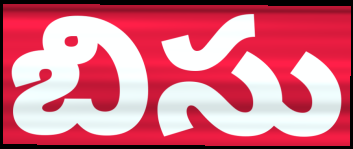
బిసు